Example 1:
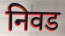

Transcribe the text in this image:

निवड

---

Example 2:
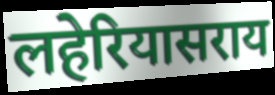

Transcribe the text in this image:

लहेरियासराय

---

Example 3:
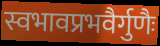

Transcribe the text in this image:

स्वभावप्रभवैर्गुणैः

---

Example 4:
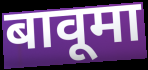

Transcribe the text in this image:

बावूमा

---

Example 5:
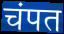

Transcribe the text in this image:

चंपत